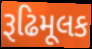
રૂઢિમૂલક